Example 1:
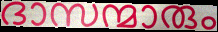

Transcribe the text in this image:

ദാസന്മാരും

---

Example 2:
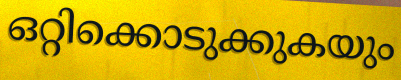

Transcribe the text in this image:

ഒറ്റിക്കൊടുക്കുകയും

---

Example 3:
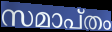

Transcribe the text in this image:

സമാപ്തം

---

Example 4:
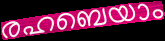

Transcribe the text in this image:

രഹബെയാം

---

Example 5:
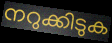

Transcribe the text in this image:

നറുക്കിടുക